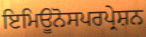
ਇਮਿਊਨੋਸਪਰਪ੍ਰੇਸ਼ਨ